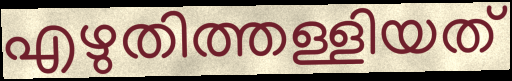
എഴുതിത്തള്ളിയത്